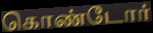
கொண்டோர்